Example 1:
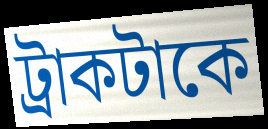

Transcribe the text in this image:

ট্রাকটাকে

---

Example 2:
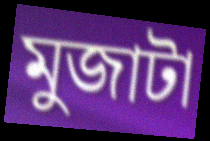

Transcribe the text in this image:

মুজাটা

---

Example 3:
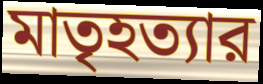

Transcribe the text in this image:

মাতৃহত্যার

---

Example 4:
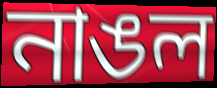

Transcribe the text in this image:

নাঙল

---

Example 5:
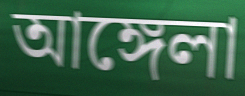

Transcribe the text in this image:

আঙ্গেলা